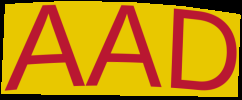
AAD